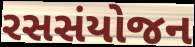
રસસંયોજન